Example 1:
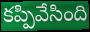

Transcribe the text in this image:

కప్పివేసింది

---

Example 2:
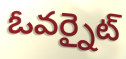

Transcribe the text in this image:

ఓవర్నైట్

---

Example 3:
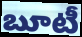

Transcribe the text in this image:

బూటీ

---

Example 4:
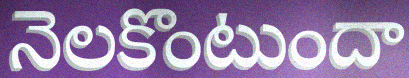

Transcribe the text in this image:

నెలకొంటుందా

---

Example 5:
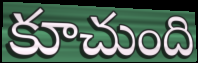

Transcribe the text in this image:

కూచుంది